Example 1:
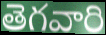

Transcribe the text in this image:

తెగవారి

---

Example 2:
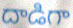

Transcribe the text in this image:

దాడిగా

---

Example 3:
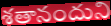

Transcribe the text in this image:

శతానందుని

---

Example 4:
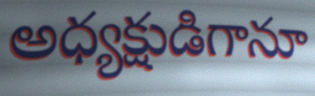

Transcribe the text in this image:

అధ్యక్షుడిగానూ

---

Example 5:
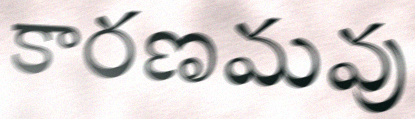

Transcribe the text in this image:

కారణమవు